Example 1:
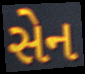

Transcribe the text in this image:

સેન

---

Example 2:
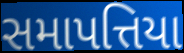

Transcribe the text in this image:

સમાપત્તિયા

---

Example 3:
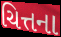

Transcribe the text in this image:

ચિત્તના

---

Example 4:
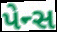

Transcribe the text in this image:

પેન્સ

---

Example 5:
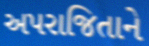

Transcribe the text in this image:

અપરાજિતાને